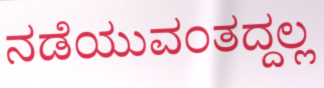
ನಡೆಯುವಂತದ್ದಲ್ಲ